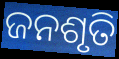
ଜନଶୃତି